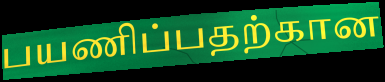
பயணிப்பதற்கான